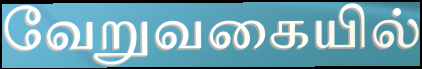
வேறுவகையில்